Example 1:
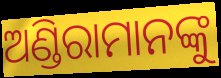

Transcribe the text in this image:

ଅଣ୍ଡିରାମାନଙ୍କୁ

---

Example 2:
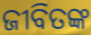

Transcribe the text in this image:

ଜୀବିତଙ୍କ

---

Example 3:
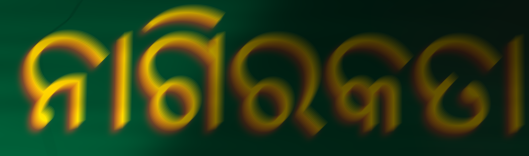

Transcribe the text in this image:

ନାଗିରକତା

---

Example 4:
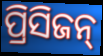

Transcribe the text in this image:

ପ୍ରିସିଜନ୍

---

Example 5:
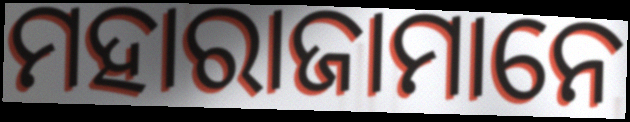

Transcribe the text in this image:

ମହାରାଜାମାନେ